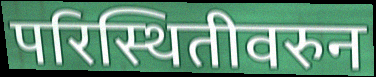
परिस्थितीवरुन